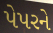
પેપરને